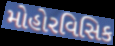
મોહોરવિસિક